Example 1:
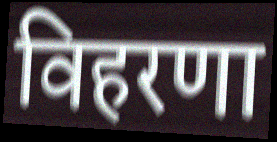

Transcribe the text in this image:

विहरणा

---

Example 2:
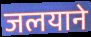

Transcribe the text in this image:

जलयाने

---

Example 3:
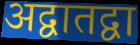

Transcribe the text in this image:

अद्वातद्वा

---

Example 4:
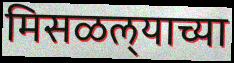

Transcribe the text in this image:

मिसळल्याच्या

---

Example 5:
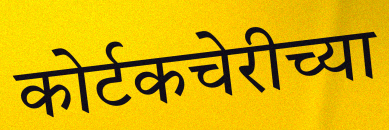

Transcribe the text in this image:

कोर्टकचेरीच्या